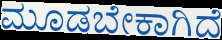
ಮೂಡಬೇಕಾಗಿದೆ